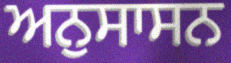
ਅਨੁਸਾਸਨ